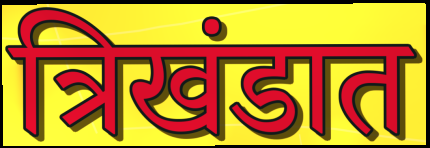
त्रिखंडात